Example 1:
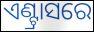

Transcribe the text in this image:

ଏଣ୍ଟ୍ରାସରେ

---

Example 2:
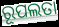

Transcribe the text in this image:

ରୂପଲତା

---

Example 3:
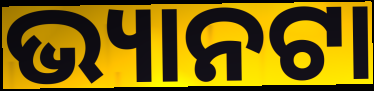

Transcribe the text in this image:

ଭ୍ୟାନଟା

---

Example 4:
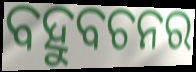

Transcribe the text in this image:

ବହୁବଚନର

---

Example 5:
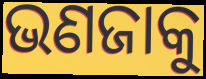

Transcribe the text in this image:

ଭଣଜାକୁ